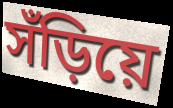
সঁড়িয়ে